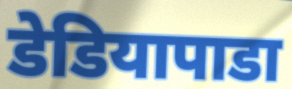
डेडियापाडा